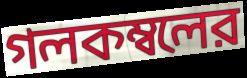
গলকম্বলের